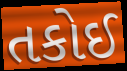
તકોઈ